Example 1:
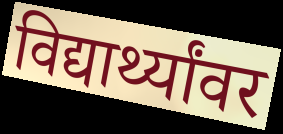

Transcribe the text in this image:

विद्यार्थ्यांवर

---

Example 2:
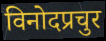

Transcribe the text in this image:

विनोदप्रचुर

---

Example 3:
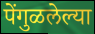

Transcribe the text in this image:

पेंगुळलेल्या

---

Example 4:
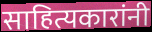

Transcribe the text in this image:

साहित्यकारांनी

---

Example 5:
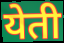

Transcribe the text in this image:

येती